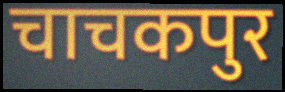
चाचकपुर